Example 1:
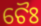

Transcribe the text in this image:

ଚୈଃ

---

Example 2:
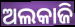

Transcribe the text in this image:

ଅଲକାଜି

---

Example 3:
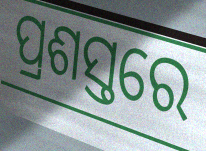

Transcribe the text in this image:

ପ୍ରଶସ୍ତରେ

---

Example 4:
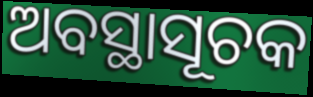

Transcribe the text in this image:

ଅବସ୍ଥାସୂଚକ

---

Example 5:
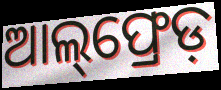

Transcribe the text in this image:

ଆଲ୍‌ଫ୍ରେଡ଼